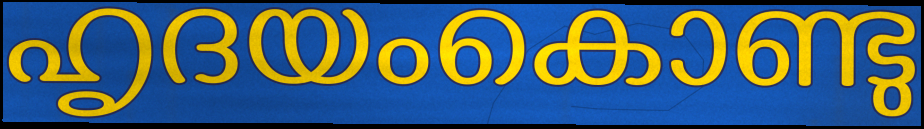
ഹൃദയംകൊണ്ടു